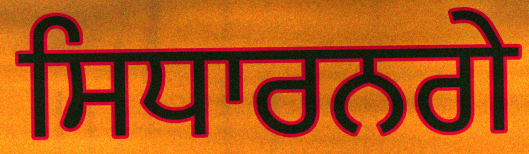
ਸਿਧਾਰਨਗੇ